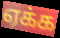
ஏக்க